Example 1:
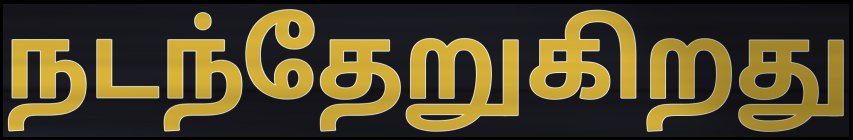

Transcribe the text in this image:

நடந்தேறுகிறது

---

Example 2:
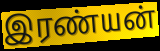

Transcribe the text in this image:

இரண்யன்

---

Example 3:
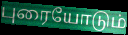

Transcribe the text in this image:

புரையோடும்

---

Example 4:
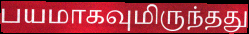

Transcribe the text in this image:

பயமாகவுமிருந்தது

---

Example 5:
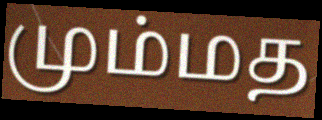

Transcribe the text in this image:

மும்மத